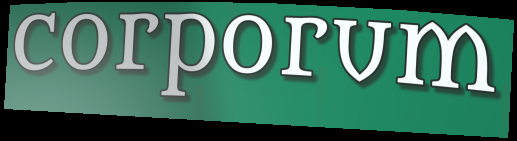
corporum